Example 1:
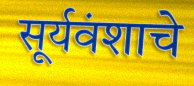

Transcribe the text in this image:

सूर्यवंशाचे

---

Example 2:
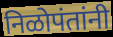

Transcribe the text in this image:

निळोपंतांनी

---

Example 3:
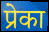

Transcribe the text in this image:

प्रेका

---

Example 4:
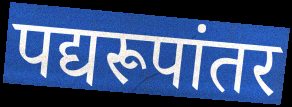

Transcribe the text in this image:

पद्यरूपांतर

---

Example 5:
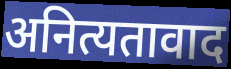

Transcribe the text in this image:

अनित्यतावाद